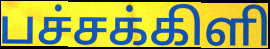
பச்சக்கிளி